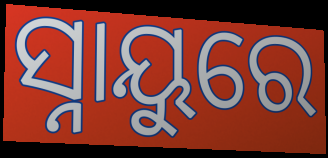
ସ୍ନାୟୁରେ